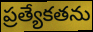
ప్రత్యేకతను